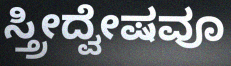
ಸ್ತ್ರೀದ್ವೇಷವೂ